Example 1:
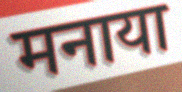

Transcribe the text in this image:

मनाया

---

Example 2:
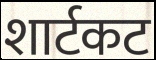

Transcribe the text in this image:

शार्टकट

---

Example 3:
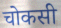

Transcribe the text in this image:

चोकसी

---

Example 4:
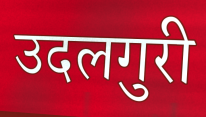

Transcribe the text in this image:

उदलगुरी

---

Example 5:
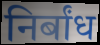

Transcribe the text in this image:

निर्बांध